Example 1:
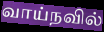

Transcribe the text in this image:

வாய்நவில்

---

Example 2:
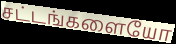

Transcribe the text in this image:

சட்டங்களையோ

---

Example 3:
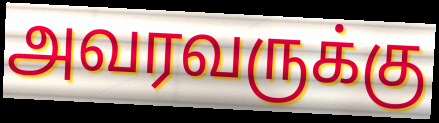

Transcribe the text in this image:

அவரவருக்கு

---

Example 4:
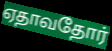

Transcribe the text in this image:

ஏதாவதோர்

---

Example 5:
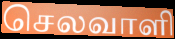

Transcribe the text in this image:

செலவாளி